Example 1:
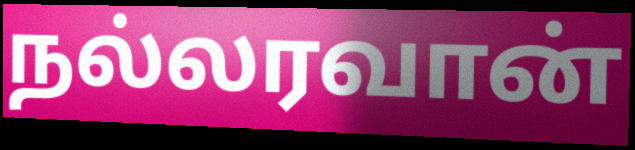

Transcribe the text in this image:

நல்லரவான்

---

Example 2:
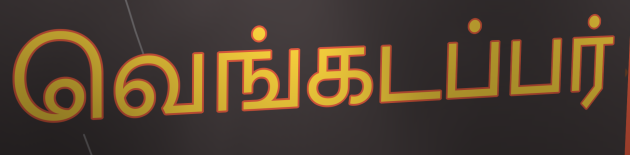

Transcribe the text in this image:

வெங்கடப்பர்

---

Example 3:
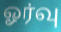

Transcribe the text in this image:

ஓர்வு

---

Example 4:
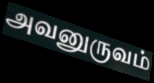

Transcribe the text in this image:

அவனுருவம்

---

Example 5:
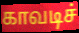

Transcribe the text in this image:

காவடிச்